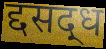
द्दसद्ध